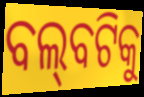
ବଲ୍‌ବଟିକୁ